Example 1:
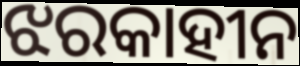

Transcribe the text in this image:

ଝରକାହୀନ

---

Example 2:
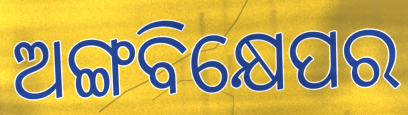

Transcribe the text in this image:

ଅଙ୍ଗବିକ୍ଷେପର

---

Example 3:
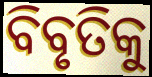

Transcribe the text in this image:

ବିବୃତିକୁ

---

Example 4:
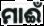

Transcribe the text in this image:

ମାଈଁ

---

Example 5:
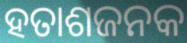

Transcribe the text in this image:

ହତାଶଜନକ